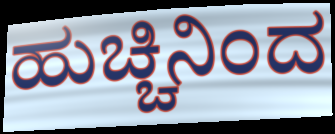
ಹುಚ್ಚಿನಿಂದ